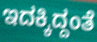
ಇದಕ್ಕಿದ್ದಂತೆ